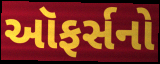
ઑફર્સનો